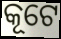
କୂଟେ